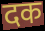
दक